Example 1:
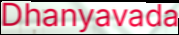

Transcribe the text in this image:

Dhanyavada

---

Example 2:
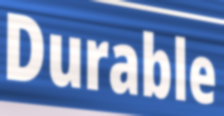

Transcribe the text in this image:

Durable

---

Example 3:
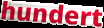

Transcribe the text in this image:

hundert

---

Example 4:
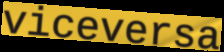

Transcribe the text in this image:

viceversa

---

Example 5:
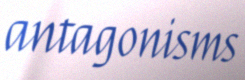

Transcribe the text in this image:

antagonisms